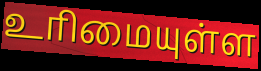
உரிமையுள்ள